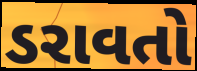
ડરાવતો